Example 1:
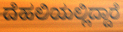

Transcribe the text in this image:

ದೆಹಲಿಯಲ್ಲಿದ್ದಾರೆ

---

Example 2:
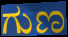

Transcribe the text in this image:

ಗುಣ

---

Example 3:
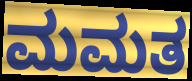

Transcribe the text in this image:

ಮಮತ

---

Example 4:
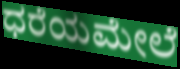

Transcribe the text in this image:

ಧರೆಯಮೇಲೆ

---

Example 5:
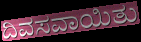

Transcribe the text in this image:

ದಿವಸವಾಯಿತು